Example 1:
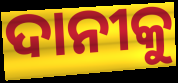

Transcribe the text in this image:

ଦାନୀକୁ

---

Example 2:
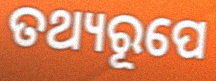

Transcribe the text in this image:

ତଥ୍ୟରୂପେ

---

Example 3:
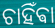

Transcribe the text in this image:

ଚାହିଁଵା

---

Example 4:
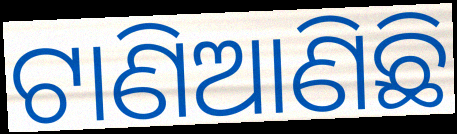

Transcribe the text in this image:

ଟାଣିଆଣିଛି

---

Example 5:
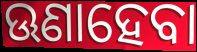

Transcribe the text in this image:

ଊଣାହେବା